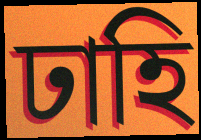
ঢাহি